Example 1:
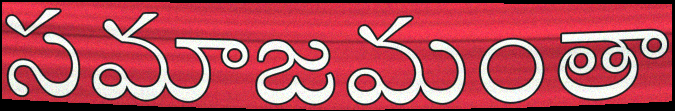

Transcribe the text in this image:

సమాజమంతా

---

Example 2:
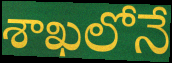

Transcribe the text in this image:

శాఖలోనే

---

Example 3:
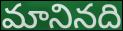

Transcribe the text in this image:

మానినది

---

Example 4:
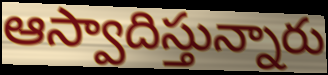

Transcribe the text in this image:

ఆస్వాదిస్తున్నారు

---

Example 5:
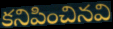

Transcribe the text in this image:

కనిపించినవి